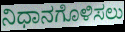
ನಿಧಾನಗೊಳಿಸಲು